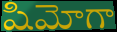
షిమోగా